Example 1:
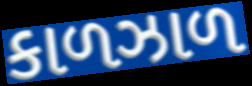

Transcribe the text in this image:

કાળઝાળ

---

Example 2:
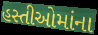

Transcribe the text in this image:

હસ્તીઓમાંના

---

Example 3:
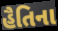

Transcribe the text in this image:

હૈતિના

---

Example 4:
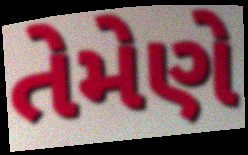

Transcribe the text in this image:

તેમેણે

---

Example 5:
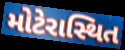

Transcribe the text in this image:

મોટેરાસ્થિત